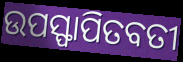
ଉପସ୍ଫାପିତବତୀ